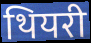
थियरी